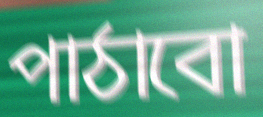
পাঠাবো